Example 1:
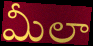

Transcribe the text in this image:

మీలా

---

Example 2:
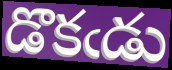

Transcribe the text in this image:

డొకఁడు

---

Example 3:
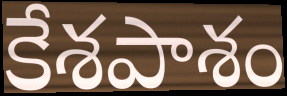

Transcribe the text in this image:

కేశపాశం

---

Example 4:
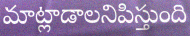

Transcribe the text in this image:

మాట్లాడాలనిపిస్తుంది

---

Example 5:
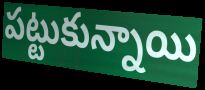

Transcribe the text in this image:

పట్టుకున్నాయి